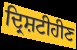
ਦ੍ਰਿਸ਼ਟੀਹੀਣ